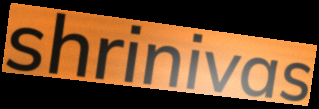
shrinivas